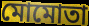
মোমোতা